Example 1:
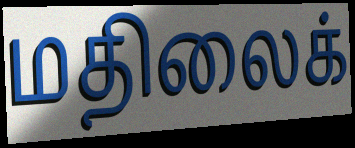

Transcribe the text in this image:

மதிலைக்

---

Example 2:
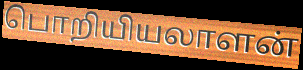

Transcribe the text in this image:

பொறியியலாளன்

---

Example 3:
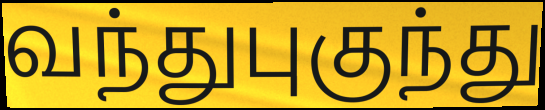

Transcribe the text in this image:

வந்துபுகுந்து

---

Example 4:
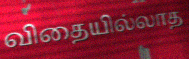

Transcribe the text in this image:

விதையில்லாத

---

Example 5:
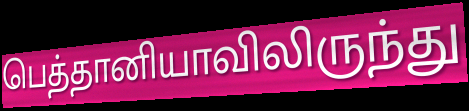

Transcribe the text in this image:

பெத்தானியாவிலிருந்து